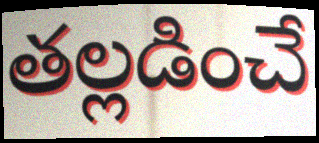
తల్లడించే